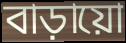
বাড়ায়ো